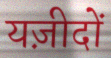
यज़ीदों